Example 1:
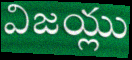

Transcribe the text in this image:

విజయ్లు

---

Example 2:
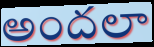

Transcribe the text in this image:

అందలా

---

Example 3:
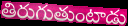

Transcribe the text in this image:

తిరుగుతుంటాడు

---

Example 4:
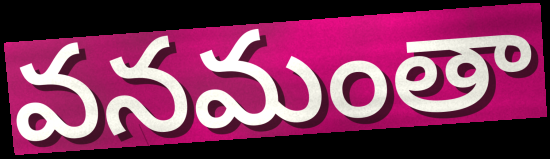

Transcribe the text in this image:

వనమంతా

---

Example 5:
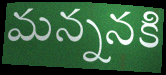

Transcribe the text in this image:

మన్ననకి